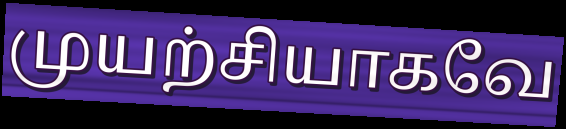
முயற்சியாகவே